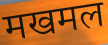
मखमल